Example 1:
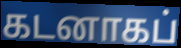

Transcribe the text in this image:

கடனாகப்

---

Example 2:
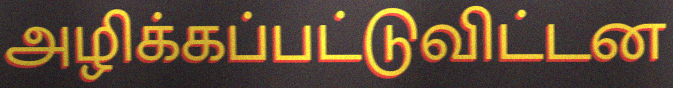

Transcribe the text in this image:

அழிக்கப்பட்டுவிட்டன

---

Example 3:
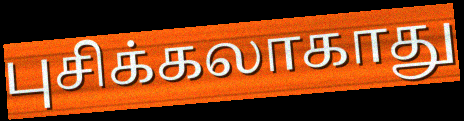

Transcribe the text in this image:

புசிக்கலாகாது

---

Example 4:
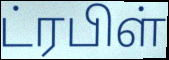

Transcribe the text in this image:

ட்ரபிள்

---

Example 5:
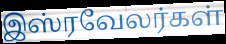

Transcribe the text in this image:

இஸ்ரவேலர்கள்